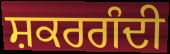
ਸ਼ਕਰਗੰਦੀ